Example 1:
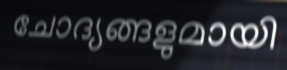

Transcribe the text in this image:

ചോദ്യങ്ങളുമായി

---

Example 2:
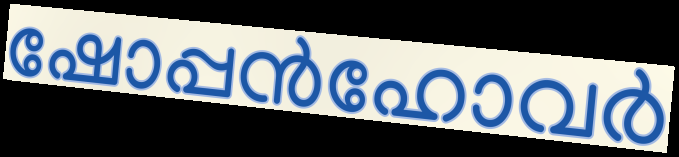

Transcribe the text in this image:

ഷോപ്പൻഹോവർ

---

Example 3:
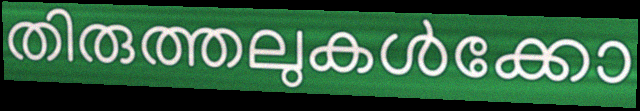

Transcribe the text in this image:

തിരുത്തലുകൾക്കോ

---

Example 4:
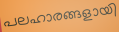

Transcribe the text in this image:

പലഹാരങ്ങളായി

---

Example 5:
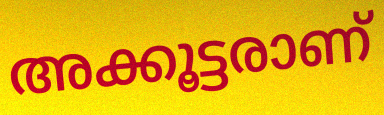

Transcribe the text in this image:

അക്കൂട്ടരാണ്